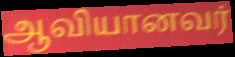
ஆவியானவர்